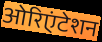
ओरिएंटेशन